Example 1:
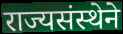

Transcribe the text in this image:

राज्यसंस्थेने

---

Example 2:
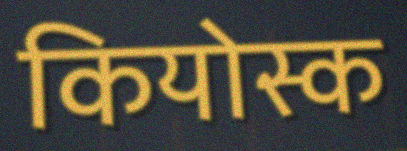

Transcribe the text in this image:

कियोस्क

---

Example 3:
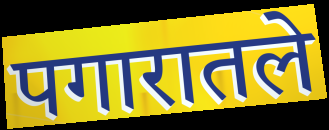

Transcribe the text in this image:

पगारातले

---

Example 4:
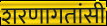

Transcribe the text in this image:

शरणागतांसी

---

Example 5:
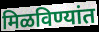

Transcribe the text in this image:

मिळविण्यांत